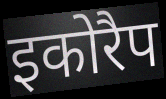
इकोरैप